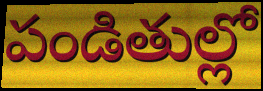
పండితుల్లో